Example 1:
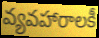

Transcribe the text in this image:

వ్యవహారాలకీ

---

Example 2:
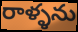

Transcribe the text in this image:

రాళ్ళను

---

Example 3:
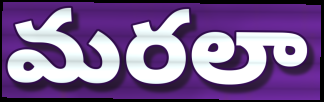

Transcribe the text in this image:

మరలా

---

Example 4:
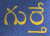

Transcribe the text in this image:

గుర్తే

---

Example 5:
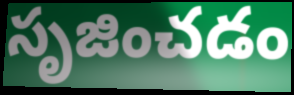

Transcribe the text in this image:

సృజించడం